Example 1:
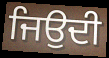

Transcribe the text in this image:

ਜਿਉਦੀ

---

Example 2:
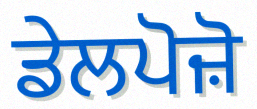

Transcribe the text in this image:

ਡੇਲਪੋਜ਼ੋ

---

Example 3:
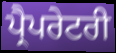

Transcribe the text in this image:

ਪ੍ਰੈਪਰੇਟਰੀ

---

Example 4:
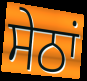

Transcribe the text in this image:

ਸੇਠਾਂ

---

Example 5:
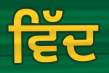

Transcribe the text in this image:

ਵਿੱਦ